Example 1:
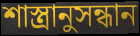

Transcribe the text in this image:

শাস্ত্রানুসন্ধান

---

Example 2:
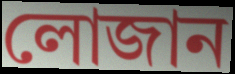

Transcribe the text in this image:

লোজান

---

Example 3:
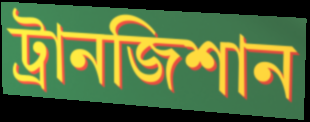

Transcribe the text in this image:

ট্রানজিশান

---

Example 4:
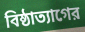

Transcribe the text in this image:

বিষ্ঠাত্যাগের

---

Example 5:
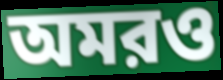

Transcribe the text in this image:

অমরও